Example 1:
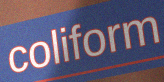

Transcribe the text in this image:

coliform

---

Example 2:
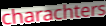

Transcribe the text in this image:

charachters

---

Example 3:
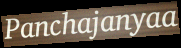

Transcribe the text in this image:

Panchajanyaa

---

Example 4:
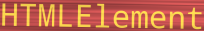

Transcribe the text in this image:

HTMLElement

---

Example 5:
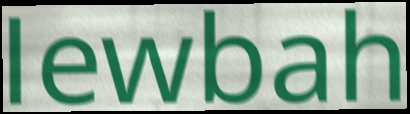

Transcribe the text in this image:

Iewbah